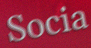
Socia